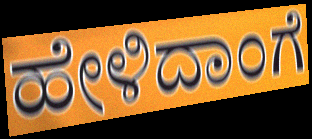
ಹೇಳಿದಾಂಗೆ